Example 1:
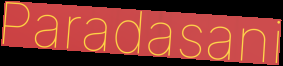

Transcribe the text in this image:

Paradasani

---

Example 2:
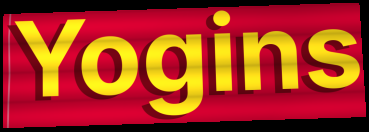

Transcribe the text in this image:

Yogins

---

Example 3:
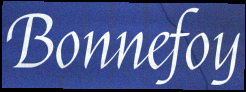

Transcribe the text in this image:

Bonnefoy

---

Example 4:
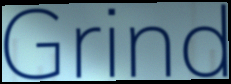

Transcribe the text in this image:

Grind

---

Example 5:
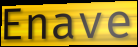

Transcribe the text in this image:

Enave